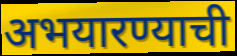
अभयारण्याची